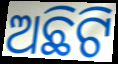
ଅଛିଟି